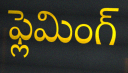
ఫ్లెమింగ్